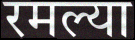
रमल्या